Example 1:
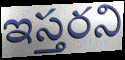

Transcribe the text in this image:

ఇస్తరని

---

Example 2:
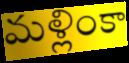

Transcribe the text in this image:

మళ్లింకా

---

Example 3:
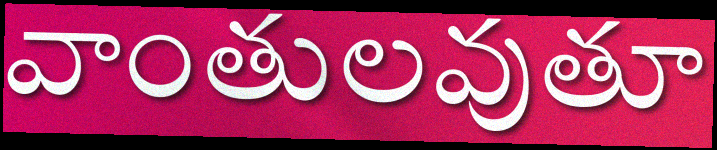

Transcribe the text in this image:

వాంతులవుతూ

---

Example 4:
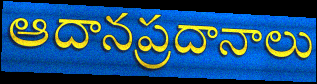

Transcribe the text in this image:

ఆదానప్రదానాలు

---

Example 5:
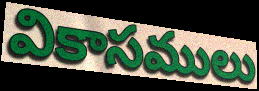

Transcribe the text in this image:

వికాసములు